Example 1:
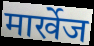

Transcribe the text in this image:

मार्खेज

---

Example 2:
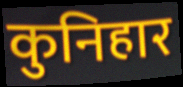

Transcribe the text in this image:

कुनिहार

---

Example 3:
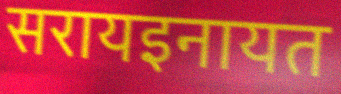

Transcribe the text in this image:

सरायइनायत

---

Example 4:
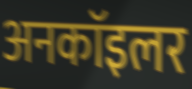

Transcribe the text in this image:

अनकॉइलर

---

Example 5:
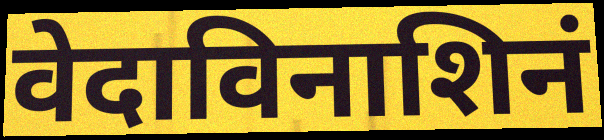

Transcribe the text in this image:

वेदाविनाशिनं